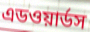
এডওয়ার্ডস